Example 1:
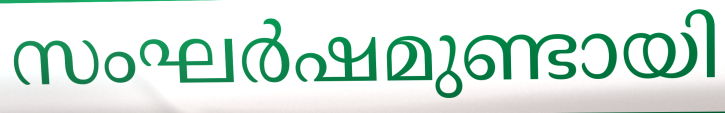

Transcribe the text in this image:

സംഘർഷമുണ്ടായി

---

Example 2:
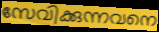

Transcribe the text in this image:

സേവിക്കുന്നവനെ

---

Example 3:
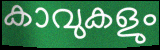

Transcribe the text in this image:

കാവുകളും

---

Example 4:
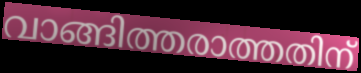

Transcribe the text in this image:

വാങ്ങിത്തരാത്തതിന്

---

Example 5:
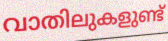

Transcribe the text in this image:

വാതിലുകളുണ്ട്